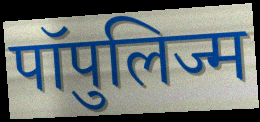
पॉपुलिज्म